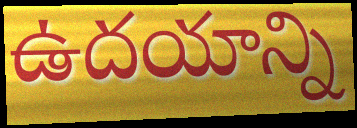
ఉదయాన్ని